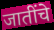
जातींचे